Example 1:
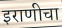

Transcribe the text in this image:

इराणीचा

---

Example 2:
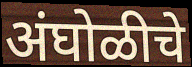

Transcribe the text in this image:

अंघोळीचे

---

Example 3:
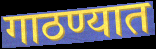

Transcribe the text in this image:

गाठण्यात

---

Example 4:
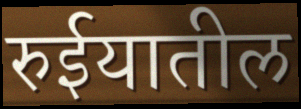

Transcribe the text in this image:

रुईयातील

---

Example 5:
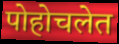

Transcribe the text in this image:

पोहोचलेत